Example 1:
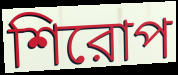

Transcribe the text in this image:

শিরোপ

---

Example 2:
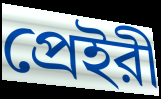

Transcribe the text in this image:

প্রেইরী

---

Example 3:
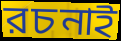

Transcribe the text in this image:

রচনাই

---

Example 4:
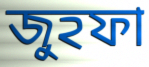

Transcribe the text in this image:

জুহফা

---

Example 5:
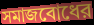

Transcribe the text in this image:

সমাজবোধের